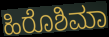
ಹಿರೊಶಿಮಾ